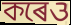
কৰেও